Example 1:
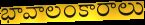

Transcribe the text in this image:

భావాలంకారాలు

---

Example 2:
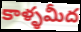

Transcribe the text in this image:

కాళ్ళమీద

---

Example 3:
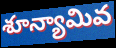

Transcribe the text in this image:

శూన్యామివ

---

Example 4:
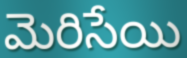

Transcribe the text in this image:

మెరిసేయి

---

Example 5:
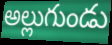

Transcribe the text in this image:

అల్లుగుండు